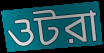
ওটরা